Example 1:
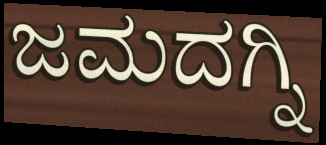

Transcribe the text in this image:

ಜಮದಗ್ನಿ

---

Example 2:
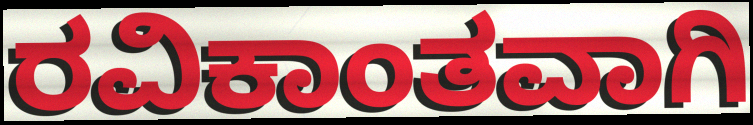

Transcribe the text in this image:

ರವಿಕಾಂತವಾಗಿ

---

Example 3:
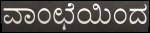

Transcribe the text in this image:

ವಾಂಛೆಯಿಂದ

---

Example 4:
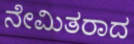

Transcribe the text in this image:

ನೇಮಿತರಾದ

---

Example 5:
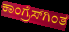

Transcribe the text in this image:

ಕಾಂಗ್ರೆಸ್‌ಗಿಂತ